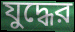
যুদ্ধের